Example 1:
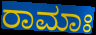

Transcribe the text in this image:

ರಾಮಾಃ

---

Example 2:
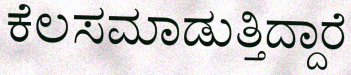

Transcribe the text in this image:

ಕೆಲಸಮಾಡುತ್ತಿದ್ದಾರೆ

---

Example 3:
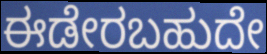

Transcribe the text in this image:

ಈಡೇರಬಹುದೇ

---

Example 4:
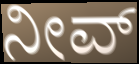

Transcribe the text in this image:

ನೀವ್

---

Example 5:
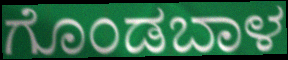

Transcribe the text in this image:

ಗೊಂಡಬಾಳ